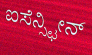
ಐಸೆನ್ಸ್ಟೀನ್